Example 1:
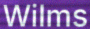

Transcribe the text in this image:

Wilms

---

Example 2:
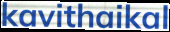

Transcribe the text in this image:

kavithaikal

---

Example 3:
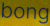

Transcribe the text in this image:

bong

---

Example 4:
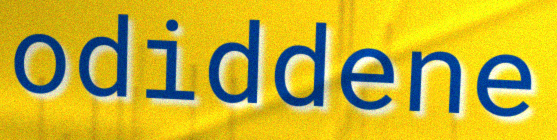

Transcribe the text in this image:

odiddene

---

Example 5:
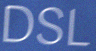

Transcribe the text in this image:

DSL